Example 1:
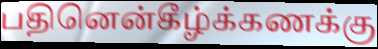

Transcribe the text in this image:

பதினென்கீழ்க்கணக்கு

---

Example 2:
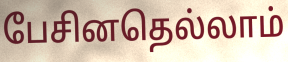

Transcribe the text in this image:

பேசினதெல்லாம்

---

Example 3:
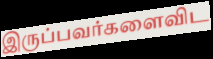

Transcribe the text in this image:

இருப்பவர்களைவிட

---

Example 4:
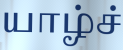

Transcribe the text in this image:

யாழ்ச்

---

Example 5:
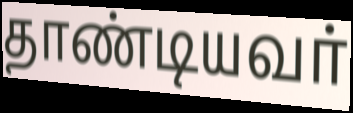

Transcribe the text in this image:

தாண்டியவர்